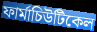
ফাৰ্মাচিউটিকেল